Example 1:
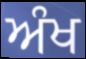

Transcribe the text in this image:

ਅੰਖ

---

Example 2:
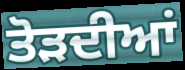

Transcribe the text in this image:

ਤੋੜਦੀਆਂ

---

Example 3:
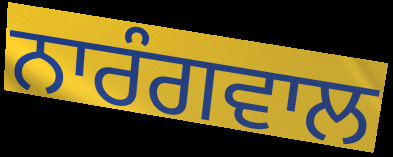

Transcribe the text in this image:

ਨਾਰੰਗਵਾਲ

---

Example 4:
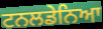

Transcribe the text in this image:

ਟਨਲਡੇਨਿਆ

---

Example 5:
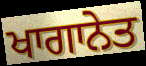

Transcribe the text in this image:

ਖਾਗਾਨੇਤ